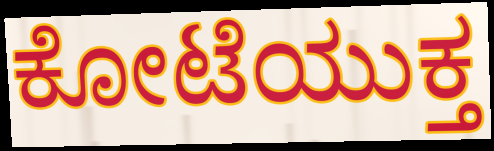
ಕೋಟೆಯುಕ್ತ